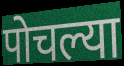
पोचल्या